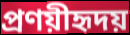
প্রণয়ীহৃদয়